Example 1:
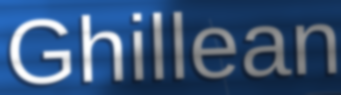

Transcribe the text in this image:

Ghillean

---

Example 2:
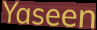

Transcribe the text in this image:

Yaseen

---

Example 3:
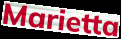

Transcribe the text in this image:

Marietta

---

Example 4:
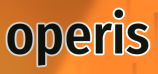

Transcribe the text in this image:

operis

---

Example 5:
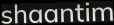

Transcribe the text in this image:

shaantim